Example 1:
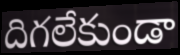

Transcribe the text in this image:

దిగలేకుండా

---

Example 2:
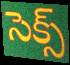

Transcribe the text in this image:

సెక్స్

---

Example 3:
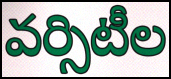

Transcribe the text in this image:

వర్సిటీల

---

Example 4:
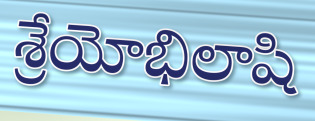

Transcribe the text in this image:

శ్రేయోభిలాషి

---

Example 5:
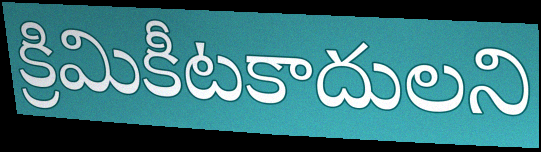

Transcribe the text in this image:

క్రిమికీటకాదులని